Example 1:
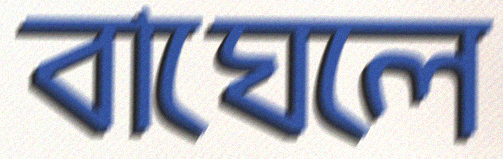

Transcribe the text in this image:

বাঘেলে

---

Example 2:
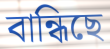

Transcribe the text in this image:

বান্ধিছে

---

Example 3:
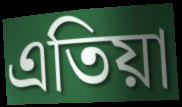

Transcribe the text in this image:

এতিয়া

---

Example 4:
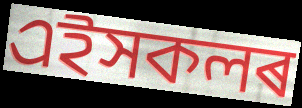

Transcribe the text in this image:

এইসকলৰ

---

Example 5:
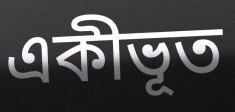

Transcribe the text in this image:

একীভূত